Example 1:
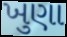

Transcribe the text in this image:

ખુણા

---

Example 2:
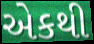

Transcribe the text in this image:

એકથી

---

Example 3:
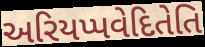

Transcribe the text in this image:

અરિયપ્પવેદિતેતિ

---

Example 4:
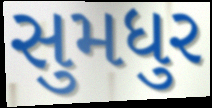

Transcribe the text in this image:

સુમધુર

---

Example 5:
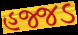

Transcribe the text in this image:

હજ્જડ